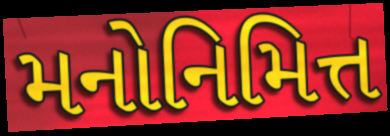
મનોનિમિત્ત